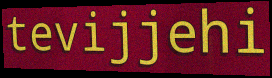
tevijjehi